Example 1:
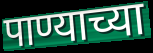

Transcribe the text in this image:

पाण्याच्या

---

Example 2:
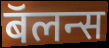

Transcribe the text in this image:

बॅलन्स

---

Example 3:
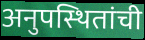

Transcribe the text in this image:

अनुपस्थितांची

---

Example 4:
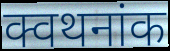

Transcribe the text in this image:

क्वथनांक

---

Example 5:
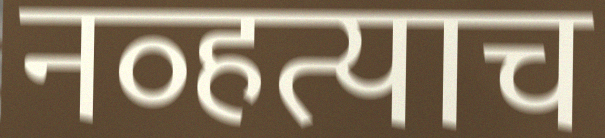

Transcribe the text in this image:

नव्हत्याच